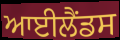
ਆਈਲੈਂਡਸ